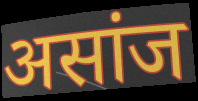
असांज